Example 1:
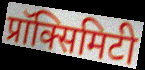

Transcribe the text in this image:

प्रॉक्सिमिटी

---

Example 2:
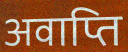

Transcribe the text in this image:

अवाप्ति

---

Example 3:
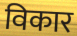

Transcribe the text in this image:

विकार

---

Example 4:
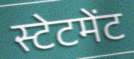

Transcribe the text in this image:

स्टेटमेंट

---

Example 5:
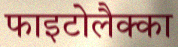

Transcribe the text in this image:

फाइटोलैक्का